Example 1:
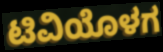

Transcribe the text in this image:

ಟಿವಿಯೊಳಗ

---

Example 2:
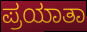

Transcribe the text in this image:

ಪ್ರಯಾತಾ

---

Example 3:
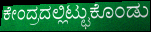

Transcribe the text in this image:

ಕೇಂದ್ರದಲ್ಲಿಟ್ಟುಕೊಂಡು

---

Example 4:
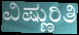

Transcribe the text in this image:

ವಿಷ್ಣುರಿತಿ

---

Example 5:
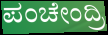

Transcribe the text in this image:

ಪಂಚೇಂದ್ರಿ